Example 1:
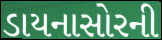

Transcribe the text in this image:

ડાયનાસોરની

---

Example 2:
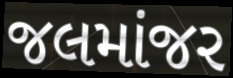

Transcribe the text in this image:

જલમાંજર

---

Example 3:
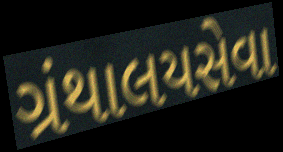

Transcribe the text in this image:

ગ્રંથાલયસેવા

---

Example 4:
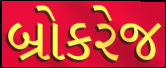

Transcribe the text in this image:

બ્રોકરેજ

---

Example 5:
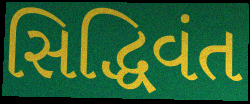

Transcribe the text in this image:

સિદ્ધિવંત